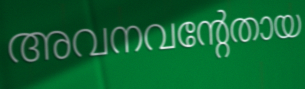
അവനവന്റേതായ